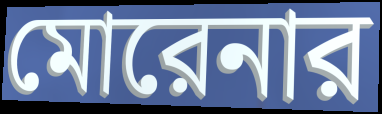
মোরেনার